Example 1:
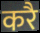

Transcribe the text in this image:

करै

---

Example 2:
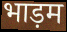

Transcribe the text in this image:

भाड़म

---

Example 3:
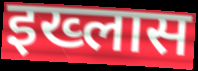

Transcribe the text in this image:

इख्लास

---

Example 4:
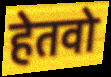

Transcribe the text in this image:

हेतवो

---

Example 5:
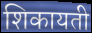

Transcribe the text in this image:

शिकायती